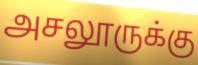
அசலூருக்கு